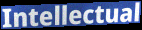
Intellectual